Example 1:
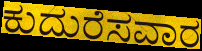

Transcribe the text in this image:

ಕುದುರೆಸವಾರ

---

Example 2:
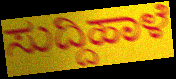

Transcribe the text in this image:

ಸುದ್ದಿಹಾಳೆ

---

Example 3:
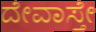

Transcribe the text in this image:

ದೇವಾಸ್ತೇ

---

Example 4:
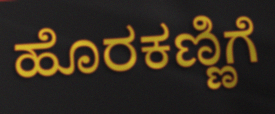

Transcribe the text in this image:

ಹೊರಕಣ್ಣಿಗೆ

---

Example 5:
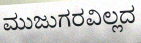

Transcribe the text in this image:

ಮುಜುಗರವಿಲ್ಲದ